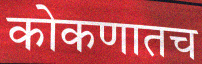
कोकणातच